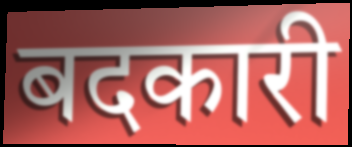
बदकारी